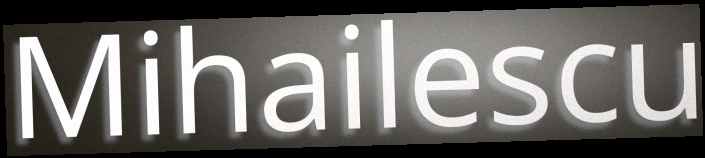
Mihailescu